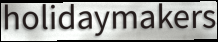
holidaymakers